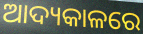
ଆଦ୍ୟକାଳରେ